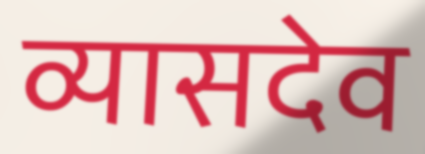
व्यासदेव